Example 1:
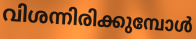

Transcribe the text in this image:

വിശന്നിരിക്കുമ്പോൾ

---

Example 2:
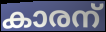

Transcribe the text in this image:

കാരന്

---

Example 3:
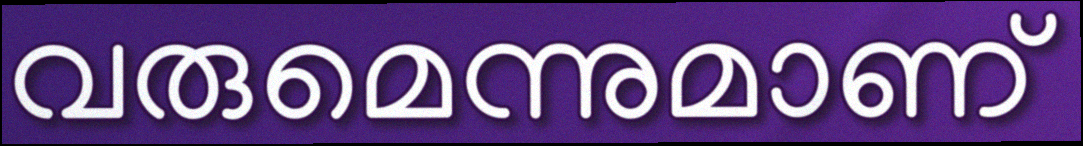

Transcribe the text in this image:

വരുമെന്നുമാണ്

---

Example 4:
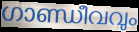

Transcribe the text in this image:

ഗാണ്ഡീവവും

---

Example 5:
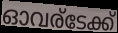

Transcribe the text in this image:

ഓവര്ടേക്ക്